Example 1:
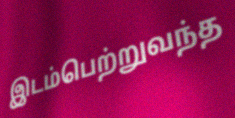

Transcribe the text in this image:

இடம்பெற்றுவந்த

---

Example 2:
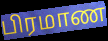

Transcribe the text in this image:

பிரமாண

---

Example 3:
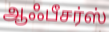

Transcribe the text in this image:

ஆஃபீசர்ஸ்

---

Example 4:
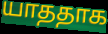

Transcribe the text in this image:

யாததாக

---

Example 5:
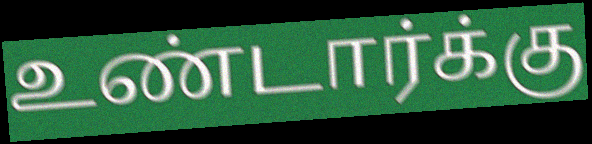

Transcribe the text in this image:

உண்டார்க்கு